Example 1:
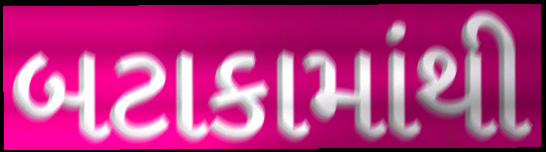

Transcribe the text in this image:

બટાકામાંથી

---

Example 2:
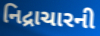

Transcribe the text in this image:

નિદ્રાચારની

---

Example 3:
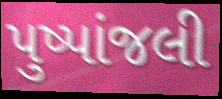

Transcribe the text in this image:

પુષ્પાંજલી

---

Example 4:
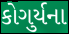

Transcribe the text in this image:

કોગુર્યના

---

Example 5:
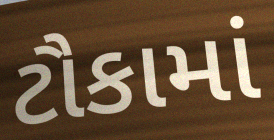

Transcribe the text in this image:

ટૌકામાં